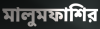
মালুমফাশির